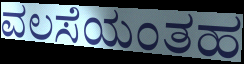
ವಲಸೆಯಂತಹ